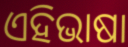
ଏହିଭାଷା